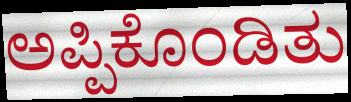
ಅಪ್ಪಿಕೊಂಡಿತು